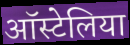
ऑस्टेलिया